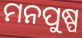
ମନପୁଷ୍ପ